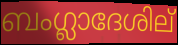
ബംഗ്ലാദേശില്